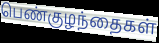
பெண்குழந்தைகள்